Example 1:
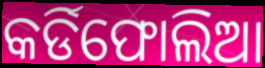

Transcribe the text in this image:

କର୍ଡିଫୋଲିଆ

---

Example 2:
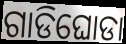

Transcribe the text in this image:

ଗାଡିଘୋଡା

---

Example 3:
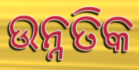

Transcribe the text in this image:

ଉନ୍ନତିକ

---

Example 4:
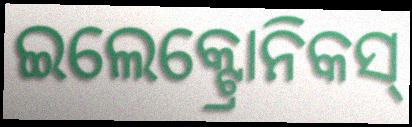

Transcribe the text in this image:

ଇଲେକ୍ଟ୍ରୋନିକସ୍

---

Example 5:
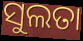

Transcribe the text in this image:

ସୁଲତା